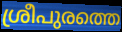
ശ്രീപുരത്തെ